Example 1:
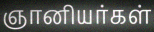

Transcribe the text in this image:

ஞானியர்கள்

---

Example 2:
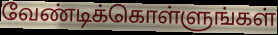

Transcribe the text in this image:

வேண்டிக்கொள்ளுங்கள்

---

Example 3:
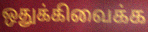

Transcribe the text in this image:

ஒதுக்கிவைக்க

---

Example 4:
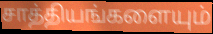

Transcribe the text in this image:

சாத்தியங்களையும்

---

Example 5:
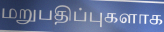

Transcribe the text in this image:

மறுபதிப்புகளாக